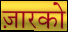
ज़ारको